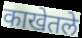
काखेतले